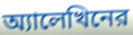
অ্যালেখিনের